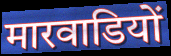
मारवाडियों